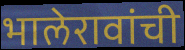
भालेरावांची